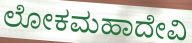
ಲೋಕಮಹಾದೇವಿ